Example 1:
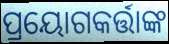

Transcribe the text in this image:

ପ୍ରୟୋଗକର୍ତ୍ତାଙ୍କ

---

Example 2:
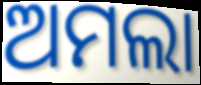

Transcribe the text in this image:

ଅମଲା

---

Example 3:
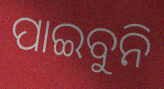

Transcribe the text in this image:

ପାଇବୁନି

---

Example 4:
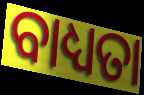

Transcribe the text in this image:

ବାଧ୍ୟତା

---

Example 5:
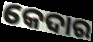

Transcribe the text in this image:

କେଦାର